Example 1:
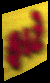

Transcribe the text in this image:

ફાટે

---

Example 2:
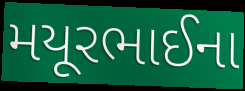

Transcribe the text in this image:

મયૂરભાઈના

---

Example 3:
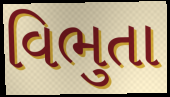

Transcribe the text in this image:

વિભુતા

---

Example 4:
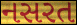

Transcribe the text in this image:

નસરત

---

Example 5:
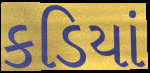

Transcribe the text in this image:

કડિયાં